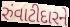
રુંવાટીદારને